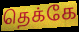
தெக்கே